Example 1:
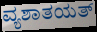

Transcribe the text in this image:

ವ್ಯಶಾತಯತ್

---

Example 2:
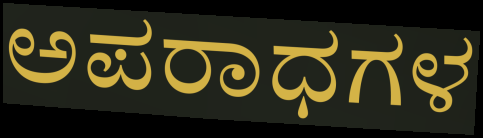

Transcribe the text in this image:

ಅಪರಾಧಗಳ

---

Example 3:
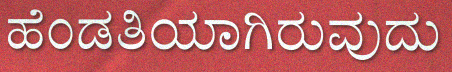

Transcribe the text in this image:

ಹೆಂಡತಿಯಾಗಿರುವುದು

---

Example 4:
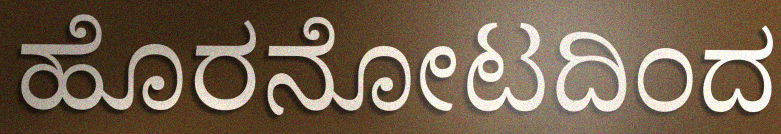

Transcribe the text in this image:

ಹೊರನೋಟದಿಂದ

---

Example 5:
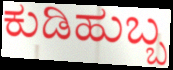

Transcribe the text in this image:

ಕುಡಿಹುಬ್ಬ